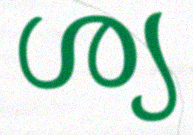
ശ്യ